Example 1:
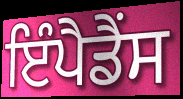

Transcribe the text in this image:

ਇੰਪੈਡੈਂਸ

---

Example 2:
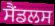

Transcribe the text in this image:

ਸੈਂਡਲਸ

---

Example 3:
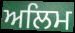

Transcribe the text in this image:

ਅਲਿਮ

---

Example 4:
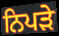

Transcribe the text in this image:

ਨਿਪੜੇ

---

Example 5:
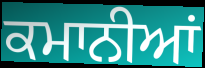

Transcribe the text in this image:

ਕਮਾਨੀਆਂ